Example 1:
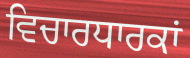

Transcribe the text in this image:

ਵਿਚਾਰਧਾਰਕਾਂ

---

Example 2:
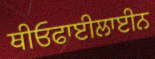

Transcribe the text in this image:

ਥੀਓਫਾਈਲਾਈਨ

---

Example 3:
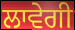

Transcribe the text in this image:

ਲਾਵੇਗੀ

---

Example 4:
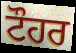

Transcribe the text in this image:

ਟੌਹਰ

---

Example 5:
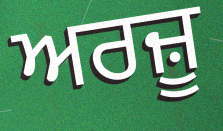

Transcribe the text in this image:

ਅਰਜ਼ੂ